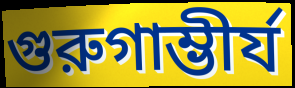
গুরুগাম্ভীর্য